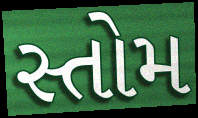
સ્તોમ